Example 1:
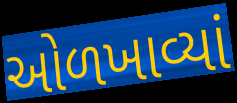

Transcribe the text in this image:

ઓળખાવ્યાં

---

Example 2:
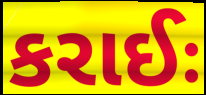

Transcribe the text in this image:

કરાઈઃ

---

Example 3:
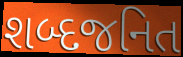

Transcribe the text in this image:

શબ્દજનિત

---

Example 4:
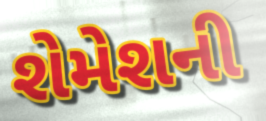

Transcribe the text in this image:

શેમેશની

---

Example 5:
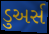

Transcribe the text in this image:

ડુઅર્સ